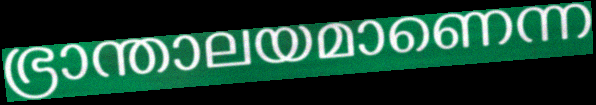
ഭ്രാന്താലയമാണെന്ന